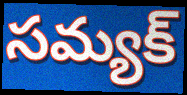
సమ్యక్